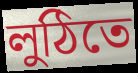
লুঠিতে